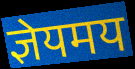
ज्ञेयमय